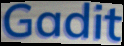
Gadit